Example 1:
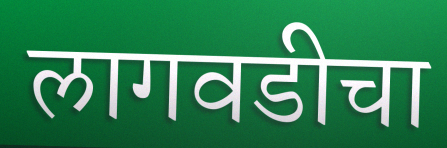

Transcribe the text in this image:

लागवडीचा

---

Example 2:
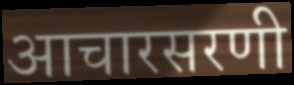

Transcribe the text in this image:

आचारसरणी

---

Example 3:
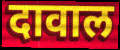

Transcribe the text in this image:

दावाल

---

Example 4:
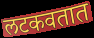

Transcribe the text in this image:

लटकवतात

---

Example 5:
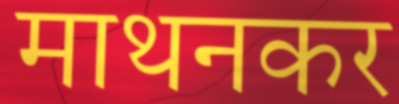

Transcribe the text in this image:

माथनकर